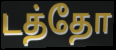
டத்தோ